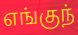
எங்குந்